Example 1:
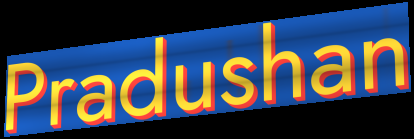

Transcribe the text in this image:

Pradushan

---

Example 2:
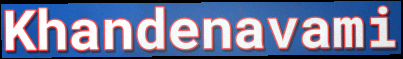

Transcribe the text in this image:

Khandenavami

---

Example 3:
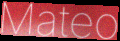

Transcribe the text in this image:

Mateo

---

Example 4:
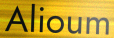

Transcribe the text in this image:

Alioum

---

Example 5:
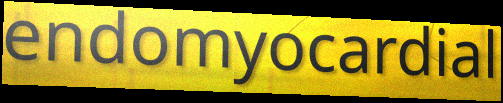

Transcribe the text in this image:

endomyocardial